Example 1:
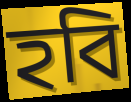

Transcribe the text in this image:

হবি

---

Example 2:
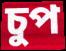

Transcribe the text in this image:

চুপ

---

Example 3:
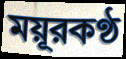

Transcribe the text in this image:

ময়ূরকণ্ঠ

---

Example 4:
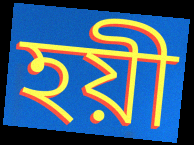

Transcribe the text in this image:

হয়ী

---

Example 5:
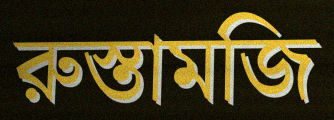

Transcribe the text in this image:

রুস্তামজি